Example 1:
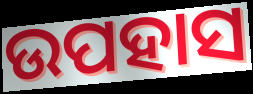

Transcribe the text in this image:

ଉପହାସ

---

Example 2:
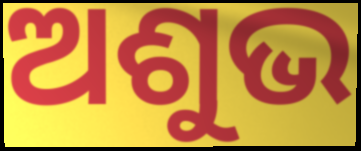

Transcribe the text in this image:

ଅଶୁଭ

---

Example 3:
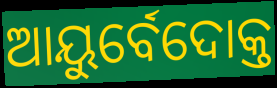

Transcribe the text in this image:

ଆୟୁର୍ବେଦୋକ୍ତ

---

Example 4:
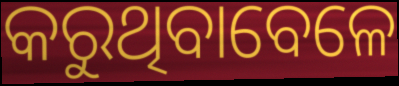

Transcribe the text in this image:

କରୁଥିବାବେଳେ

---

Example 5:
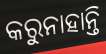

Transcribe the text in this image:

କରୁନାହାନ୍ତି